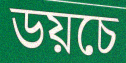
ডয়চে